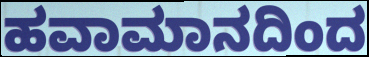
ಹವಾಮಾನದಿಂದ